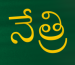
నేత్రి